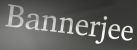
Bannerjee